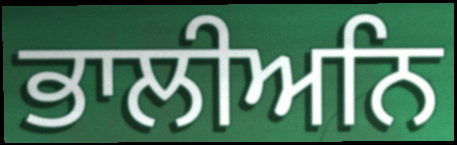
ਭਾਲੀਅਨਿ